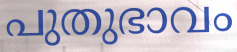
പുതുഭാവം